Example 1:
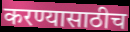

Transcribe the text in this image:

करण्यासाठीच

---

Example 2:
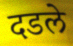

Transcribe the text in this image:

दडले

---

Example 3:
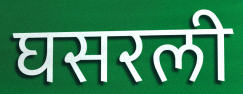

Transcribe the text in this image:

घसरली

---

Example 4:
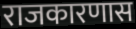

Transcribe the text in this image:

राजकारणास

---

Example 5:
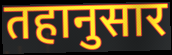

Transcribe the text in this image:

तहानुसार